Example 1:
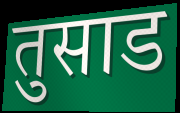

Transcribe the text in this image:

तुसाड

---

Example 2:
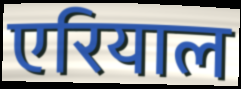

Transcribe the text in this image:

एरियाल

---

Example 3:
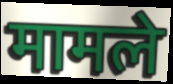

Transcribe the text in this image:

मामले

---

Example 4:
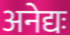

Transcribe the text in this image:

अनेद्यः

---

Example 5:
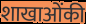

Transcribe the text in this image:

शाखाओंकी